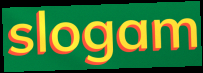
slogam